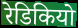
रेडिकियो